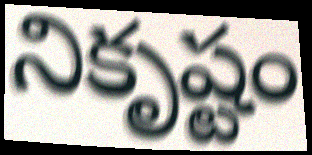
నికృష్టం